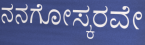
ನನಗೋಸ್ಕರವೇ